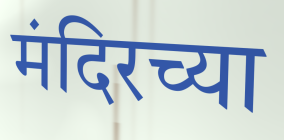
मंदिरच्या